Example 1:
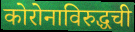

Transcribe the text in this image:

कोरोनाविरुद्धची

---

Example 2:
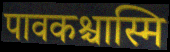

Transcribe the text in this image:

पावकश्चास्मि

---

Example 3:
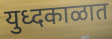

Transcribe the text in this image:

युध्दकाळात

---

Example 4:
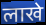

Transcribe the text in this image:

लाखे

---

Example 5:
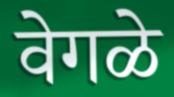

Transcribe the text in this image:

वेगळे